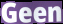
Geen